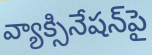
వ్యాక్సినేషన్‌పై